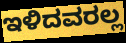
ಇಳಿದವರಲ್ಲ